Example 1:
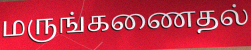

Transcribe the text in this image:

மருங்கணைதல்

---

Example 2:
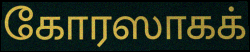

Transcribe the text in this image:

கோரஸாகக்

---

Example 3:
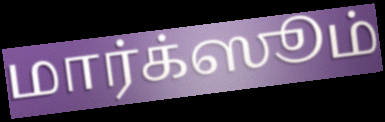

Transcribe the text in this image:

மார்க்ஸூம்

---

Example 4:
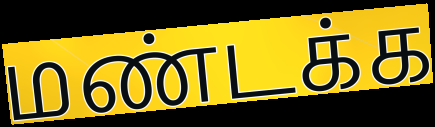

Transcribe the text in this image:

மண்டக்க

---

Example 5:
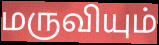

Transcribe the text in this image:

மருவியும்